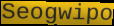
Seogwipo